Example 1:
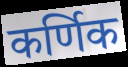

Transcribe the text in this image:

कर्णिक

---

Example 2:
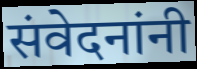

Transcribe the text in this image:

संवेदनांनी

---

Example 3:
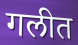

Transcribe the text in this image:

गलीत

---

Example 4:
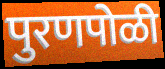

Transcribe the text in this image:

पुरणपोळी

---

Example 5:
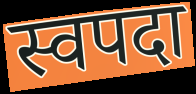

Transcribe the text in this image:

स्वपदा